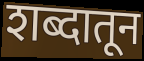
शब्दातून